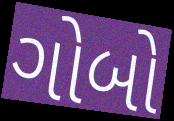
ગોબો